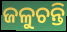
ଜଳୁଚନ୍ତି